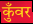
कुँवर